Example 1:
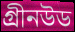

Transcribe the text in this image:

গ্রীনউড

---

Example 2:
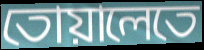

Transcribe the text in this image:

তোয়ালেতে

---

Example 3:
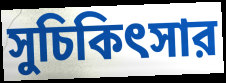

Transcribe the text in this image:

সুচিকিৎসার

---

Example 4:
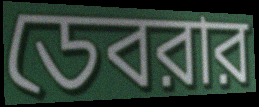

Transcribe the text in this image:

ডেবরার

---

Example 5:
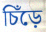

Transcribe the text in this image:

চিঁড়ে